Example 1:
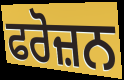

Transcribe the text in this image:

ਫਰੋਜ਼ਨ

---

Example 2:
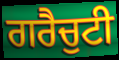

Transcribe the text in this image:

ਗਰੈਚੁਟੀ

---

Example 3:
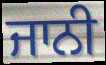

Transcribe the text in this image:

ਜਾਨੀ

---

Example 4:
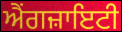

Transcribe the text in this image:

ਐਂਗਜ਼ਾਇਟੀ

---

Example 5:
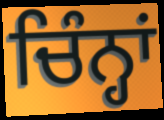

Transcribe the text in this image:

ਚਿੰਨ੍ਹਾਂ